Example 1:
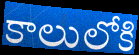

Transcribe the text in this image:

కాలులోకి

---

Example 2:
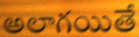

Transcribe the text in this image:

అలాగయితే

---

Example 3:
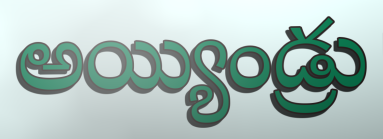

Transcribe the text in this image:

అయ్యిండ్రు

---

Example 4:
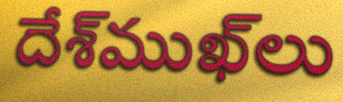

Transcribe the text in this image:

దేశ్‌ముఖ్‌లు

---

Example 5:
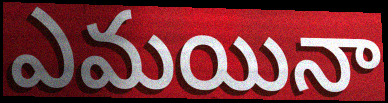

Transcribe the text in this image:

ఎమయినా